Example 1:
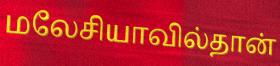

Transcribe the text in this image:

மலேசியாவில்தான்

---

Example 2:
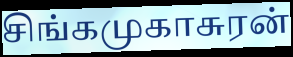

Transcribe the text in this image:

சிங்கமுகாசுரன்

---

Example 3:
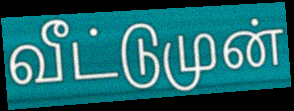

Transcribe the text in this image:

வீட்டுமுன்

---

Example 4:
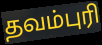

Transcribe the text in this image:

தவம்புரி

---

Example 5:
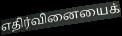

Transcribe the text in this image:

எதிர்வினையைக்